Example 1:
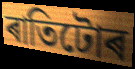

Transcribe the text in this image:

ৰাতিটোৰ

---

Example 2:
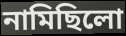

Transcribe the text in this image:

নামিছিলো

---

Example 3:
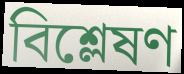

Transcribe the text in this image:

বিশ্লেষণ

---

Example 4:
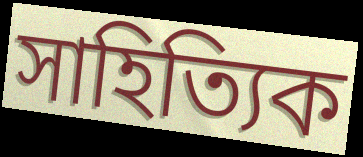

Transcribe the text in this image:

সাহিত্যিক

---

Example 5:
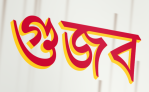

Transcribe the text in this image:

গুজব